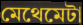
মেথেমেটা